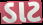
ડાટ